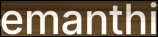
emanthi